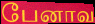
பேனாவ